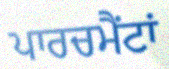
ਪਾਰਚਮੈਂਟਾਂ